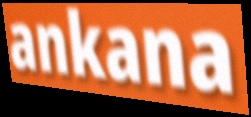
ankana